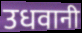
उधवानी